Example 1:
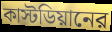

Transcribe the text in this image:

কাস্টডিয়ানের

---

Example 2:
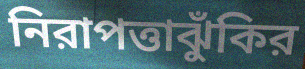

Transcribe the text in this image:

নিরাপত্তাঝুঁকির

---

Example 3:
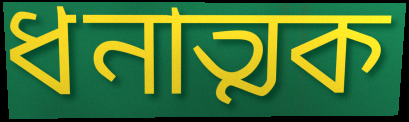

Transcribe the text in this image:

ধনাত্মক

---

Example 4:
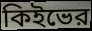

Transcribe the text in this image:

কিইভের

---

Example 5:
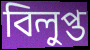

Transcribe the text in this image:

বিলুপ্ত